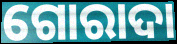
ଗୋରାଦା